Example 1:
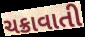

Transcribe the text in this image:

ચક્રાવાતી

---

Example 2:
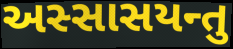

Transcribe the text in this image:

અસ્સાસયન્તુ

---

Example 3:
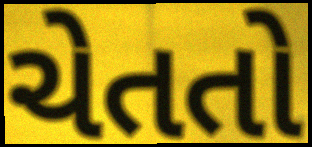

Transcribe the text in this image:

ચેતતો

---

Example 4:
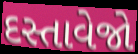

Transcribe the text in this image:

દસ્તાવેજો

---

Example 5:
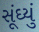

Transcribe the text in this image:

સૂંઘ્યું